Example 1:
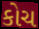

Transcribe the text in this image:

કોચ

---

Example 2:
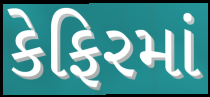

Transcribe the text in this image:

કેફિરમાં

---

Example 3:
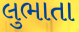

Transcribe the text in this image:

લુભાતા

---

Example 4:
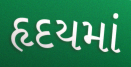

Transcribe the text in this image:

હૃદયમાં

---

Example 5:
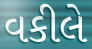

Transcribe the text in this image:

વકીલે